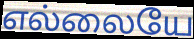
எல்லையே